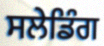
ਸਲੇਡਿੰਗ